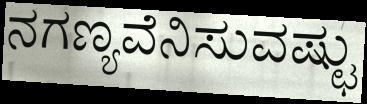
ನಗಣ್ಯವೆನಿಸುವಷ್ಟು